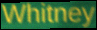
Whitney